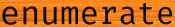
enumerate